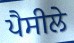
ਪੈਸੀਲੇ